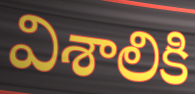
విశాలికి